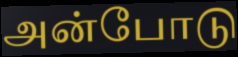
அன்போடு